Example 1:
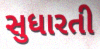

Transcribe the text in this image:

સુધારતી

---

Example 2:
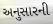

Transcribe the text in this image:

અનુસારની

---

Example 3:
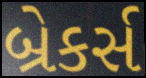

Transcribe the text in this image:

બ્રેકર્સ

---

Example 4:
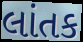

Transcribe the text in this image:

લાંતક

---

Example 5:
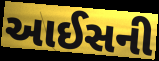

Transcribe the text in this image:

આઈસની